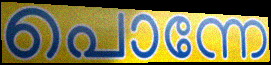
പൊന്നേ